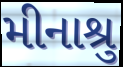
મીનાશ્રુ